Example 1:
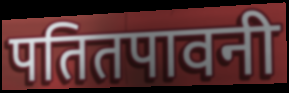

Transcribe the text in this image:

पतितपावनी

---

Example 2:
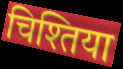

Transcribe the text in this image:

चिश्तिया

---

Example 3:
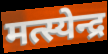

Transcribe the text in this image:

मत्स्येन्द्र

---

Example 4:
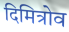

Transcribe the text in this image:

दिमित्रोव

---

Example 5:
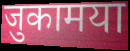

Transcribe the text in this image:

जुकामया